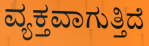
ವ್ಯಕ್ತವಾಗುತ್ತಿದೆ